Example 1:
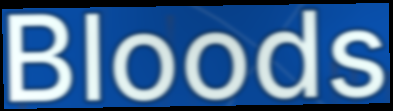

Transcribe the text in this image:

Bloods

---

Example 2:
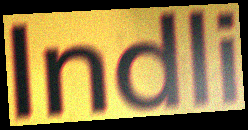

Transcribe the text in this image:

Indli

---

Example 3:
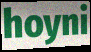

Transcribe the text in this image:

hoyni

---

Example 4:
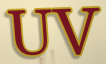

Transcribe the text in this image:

UV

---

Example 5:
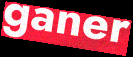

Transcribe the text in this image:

ganer